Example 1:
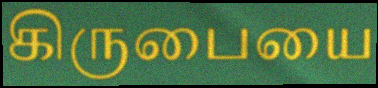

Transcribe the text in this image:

கிருபையை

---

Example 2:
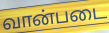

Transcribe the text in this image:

வான்படை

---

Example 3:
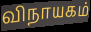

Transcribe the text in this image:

விநாயகம்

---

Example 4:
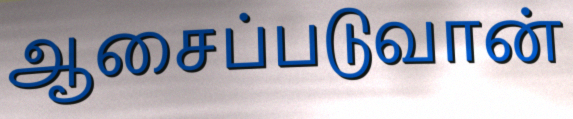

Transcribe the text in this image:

ஆசைப்படுவான்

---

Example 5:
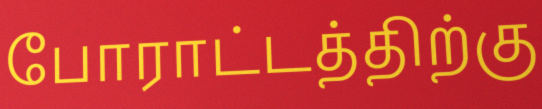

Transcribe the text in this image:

போராட்டத்திற்கு